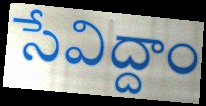
సేవిద్దాం